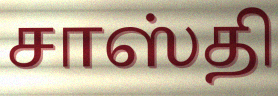
சாஸ்தி